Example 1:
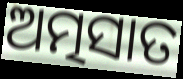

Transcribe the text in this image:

ଅତ୍ମସାତ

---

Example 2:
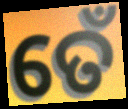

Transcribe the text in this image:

ତେଁ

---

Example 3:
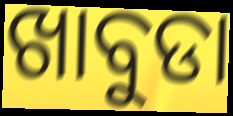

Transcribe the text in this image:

ଖାବୁଡା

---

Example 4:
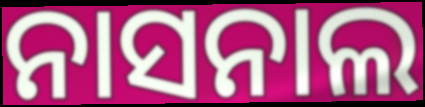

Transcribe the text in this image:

ନାସନାଲ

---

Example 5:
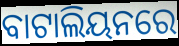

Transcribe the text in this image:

ବାଟାଲିୟନରେ